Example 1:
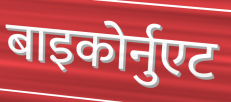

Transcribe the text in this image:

बाइकोर्नुएट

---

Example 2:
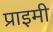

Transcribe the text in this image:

प्राइमी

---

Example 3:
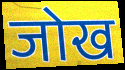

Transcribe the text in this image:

जोख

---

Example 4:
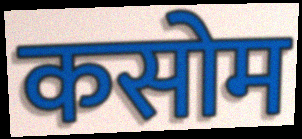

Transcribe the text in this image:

कसोम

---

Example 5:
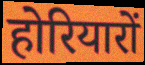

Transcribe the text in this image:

होरियारों